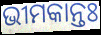
ଭୀମକାନ୍ତଃ